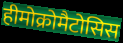
हीमोक्रोमैटोसिस